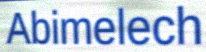
Abimelech